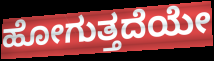
ಹೋಗುತ್ತದೆಯೇ